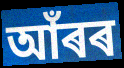
আঁৰৰ